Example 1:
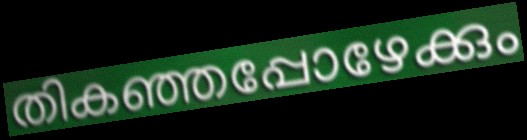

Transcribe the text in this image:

തികഞ്ഞപ്പോഴേക്കും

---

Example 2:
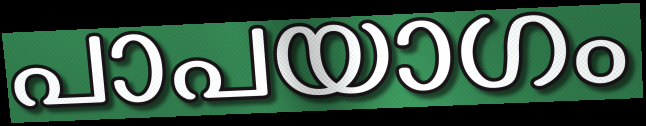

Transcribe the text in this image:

പാപയാഗം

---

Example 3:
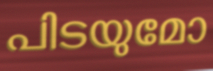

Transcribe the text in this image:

പിടയുമോ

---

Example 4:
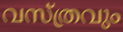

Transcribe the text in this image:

വസ്ത്രവും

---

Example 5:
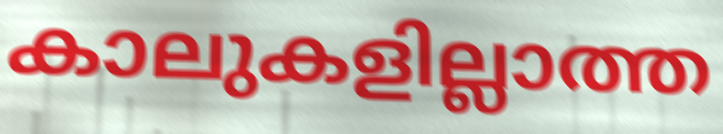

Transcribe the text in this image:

കാലുകളില്ലാത്ത